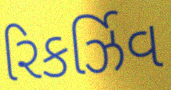
રિકર્ઝિવ